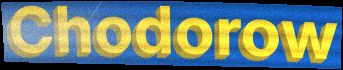
Chodorow